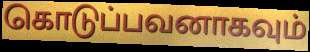
கொடுப்பவனாகவும்